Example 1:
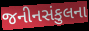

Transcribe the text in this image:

જનીનસંકુલના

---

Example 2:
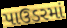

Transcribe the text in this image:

પાઉડરમાં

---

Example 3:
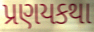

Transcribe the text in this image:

પ્રણયકથા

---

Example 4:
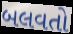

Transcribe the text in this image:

બલવતો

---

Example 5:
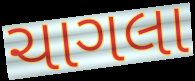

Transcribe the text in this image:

ચાગલા